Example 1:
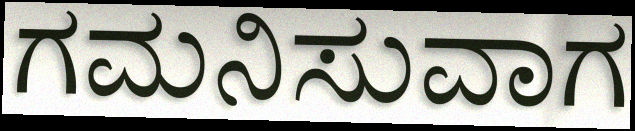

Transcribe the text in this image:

ಗಮನಿಸುವಾಗ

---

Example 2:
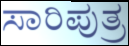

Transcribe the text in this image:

ಸಾರಿಪುತ್ರ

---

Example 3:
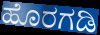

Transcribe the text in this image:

ಹೊರಗಡಿ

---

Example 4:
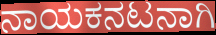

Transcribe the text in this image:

ನಾಯಕನಟನಾಗಿ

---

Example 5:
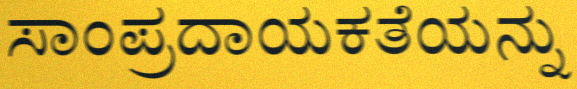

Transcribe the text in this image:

ಸಾಂಪ್ರದಾಯಕತೆಯನ್ನು